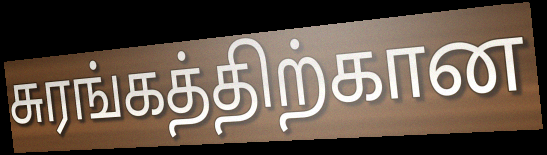
சுரங்கத்திற்கான